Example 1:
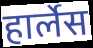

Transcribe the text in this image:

हार्लेस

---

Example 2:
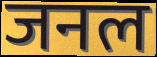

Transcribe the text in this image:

जनल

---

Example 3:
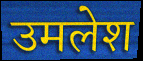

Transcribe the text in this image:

उमलेश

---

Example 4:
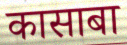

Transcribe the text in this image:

कासाबा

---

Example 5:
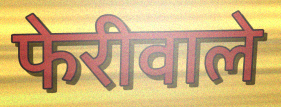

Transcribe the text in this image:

फेरीवाले